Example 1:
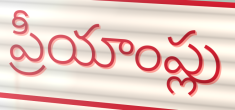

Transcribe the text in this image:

ప్రీయాంప్లు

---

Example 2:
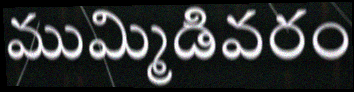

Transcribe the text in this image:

ముమ్మిడివరం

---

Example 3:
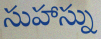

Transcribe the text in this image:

సుహాస్ను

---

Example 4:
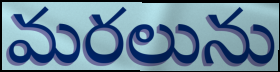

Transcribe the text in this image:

మరలును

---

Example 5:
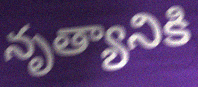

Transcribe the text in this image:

నృత్యానికి